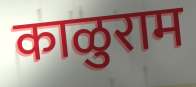
काळुराम